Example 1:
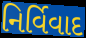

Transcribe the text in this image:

નિર્વિવાદ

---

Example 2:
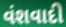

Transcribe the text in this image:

વંશવાદી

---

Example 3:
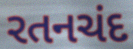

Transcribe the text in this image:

રતનચંદ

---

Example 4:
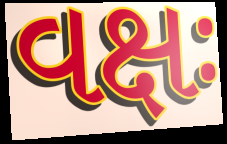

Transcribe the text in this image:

વક્ષઃ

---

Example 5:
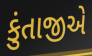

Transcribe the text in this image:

કુંતાજીએ